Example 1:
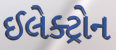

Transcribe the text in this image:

ઈલેક્ટ્રોન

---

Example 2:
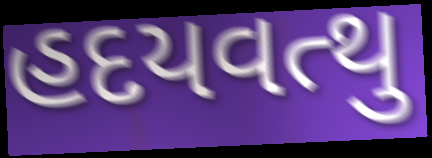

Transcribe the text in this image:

હદયવત્થુ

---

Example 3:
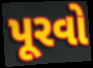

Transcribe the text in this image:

પૂરવો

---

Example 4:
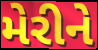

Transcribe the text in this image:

મેરીને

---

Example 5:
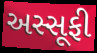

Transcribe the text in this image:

અસ્સૂફી